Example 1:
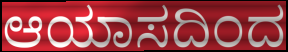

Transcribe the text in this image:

ಆಯಾಸದಿಂದ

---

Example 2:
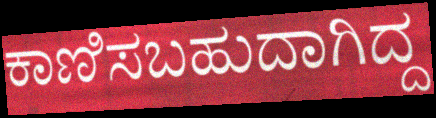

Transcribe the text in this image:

ಕಾಣಿಸಬಹುದಾಗಿದ್ದ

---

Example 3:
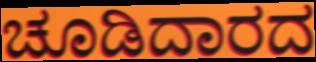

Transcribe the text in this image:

ಚೂಡಿದಾರದ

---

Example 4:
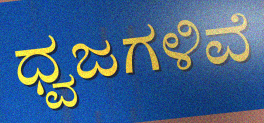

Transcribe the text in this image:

ಧ್ವಜಗಳಿವೆ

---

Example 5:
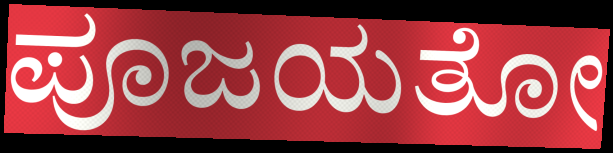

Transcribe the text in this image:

ಪೂಜಯತೋ